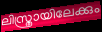
ലിസ്ത്രായിലേക്കും